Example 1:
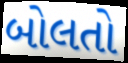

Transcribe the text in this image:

બોલતો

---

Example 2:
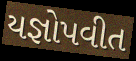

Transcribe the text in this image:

યજ્ઞોપવીત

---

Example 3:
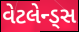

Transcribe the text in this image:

વેટલેન્ડ્સ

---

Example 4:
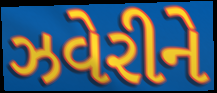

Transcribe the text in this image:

ઝવેરીને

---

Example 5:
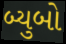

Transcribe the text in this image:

બ્યુબો